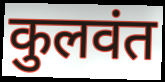
कुलवंत